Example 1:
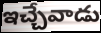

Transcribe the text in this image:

ఇచ్చేవాడు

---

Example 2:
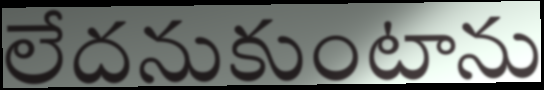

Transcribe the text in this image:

లేదనుకుంటాను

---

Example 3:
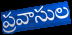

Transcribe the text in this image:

ప్రవాసుల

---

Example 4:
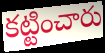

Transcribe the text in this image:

కట్టించారు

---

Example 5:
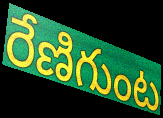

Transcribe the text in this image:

రేణిగుంట